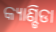
କ୍ୟାଣ୍ଡିଡା